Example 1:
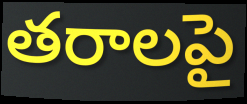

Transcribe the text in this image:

తరాలపై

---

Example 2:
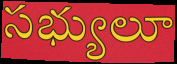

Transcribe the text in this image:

సభ్యులూ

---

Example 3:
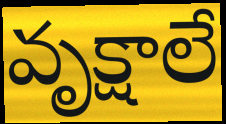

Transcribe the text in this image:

వృక్షాలే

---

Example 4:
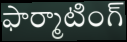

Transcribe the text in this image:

ఫార్మాటింగ్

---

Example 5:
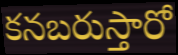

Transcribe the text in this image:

కనబరుస్తారో